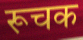
रूचक